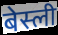
बेस्ली